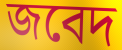
জবেদ